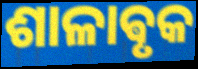
ଶାଳାଵୃକ